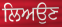
ਲਿਅਉਣ